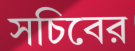
সচিবের